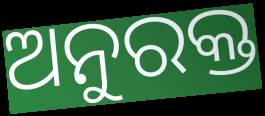
ଅନୁରକ୍ତ